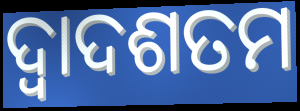
ଦ୍ୱାଦଶତମ